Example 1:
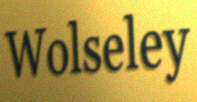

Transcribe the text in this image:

Wolseley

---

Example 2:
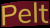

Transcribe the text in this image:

Pelt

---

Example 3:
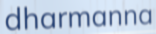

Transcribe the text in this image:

dharmanna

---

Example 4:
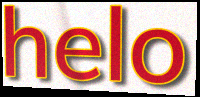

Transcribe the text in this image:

helo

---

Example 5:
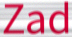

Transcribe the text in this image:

Zad